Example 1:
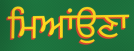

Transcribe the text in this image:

ਮਿਆਂਉਣਾ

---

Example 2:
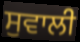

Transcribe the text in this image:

ਸੁਵਾਲੀ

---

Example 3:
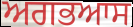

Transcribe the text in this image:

ਅਗਭਆਸ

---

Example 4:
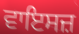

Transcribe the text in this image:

ਵਾਇਸਜ਼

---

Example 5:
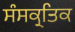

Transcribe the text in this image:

ਸੰਸਕ੍ਰਤਿਕ